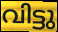
വിട്ടു